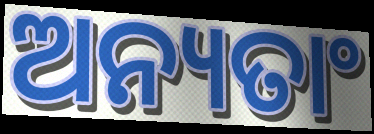
ଅନ୍ୟତାଂ